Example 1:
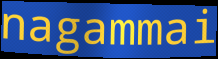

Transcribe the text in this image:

nagammai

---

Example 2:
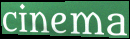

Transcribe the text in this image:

cinema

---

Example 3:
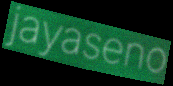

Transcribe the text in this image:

jayaseno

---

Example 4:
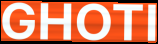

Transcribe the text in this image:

GHOTI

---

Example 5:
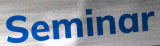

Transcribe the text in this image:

Seminar